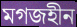
মগজহীন